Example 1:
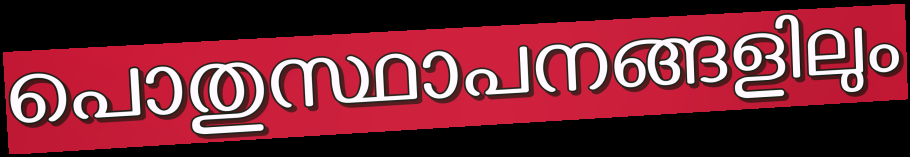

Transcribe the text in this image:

പൊതുസ്ഥാപനങ്ങളിലും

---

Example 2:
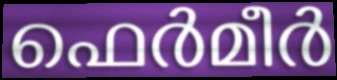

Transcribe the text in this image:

ഫെർമീർ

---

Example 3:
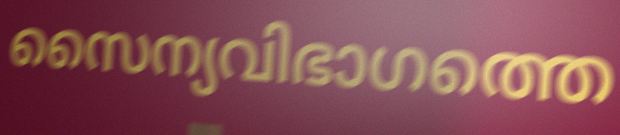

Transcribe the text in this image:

സൈന്യവിഭാഗത്തെ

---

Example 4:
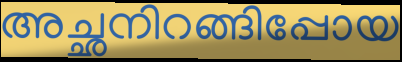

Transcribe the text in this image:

അച്ഛനിറങ്ങിപ്പോയ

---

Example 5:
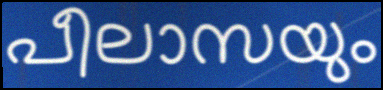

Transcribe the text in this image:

പീലാസയും